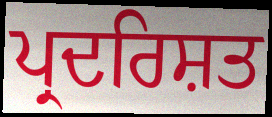
ਪ੍ਰਦਰਿਸ਼ਤ